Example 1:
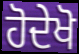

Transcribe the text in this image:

ਹੋਦੇਖੋ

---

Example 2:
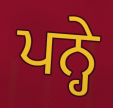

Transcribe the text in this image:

ਪਨ੍ਹੇ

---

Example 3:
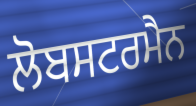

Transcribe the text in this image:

ਲੋਬਸਟਰਮੈਨ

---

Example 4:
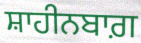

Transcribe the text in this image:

ਸ਼ਾਹੀਨਬਾਗ਼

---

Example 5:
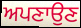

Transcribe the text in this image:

ਅਪਣਾਉਣ